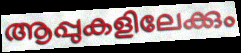
ആപ്പുകളിലേക്കും